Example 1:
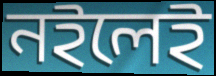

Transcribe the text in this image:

নইলেই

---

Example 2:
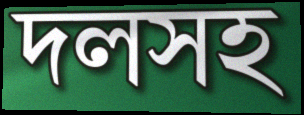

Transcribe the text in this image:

দলসহ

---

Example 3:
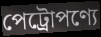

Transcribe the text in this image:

পেট্রোপণ্যে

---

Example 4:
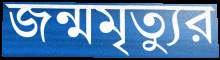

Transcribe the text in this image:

জন্মমৃত্যুর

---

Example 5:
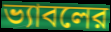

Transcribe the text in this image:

ভ্যাবলের